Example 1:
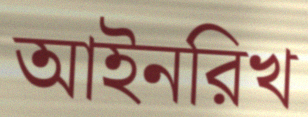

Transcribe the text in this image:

আইনরিখ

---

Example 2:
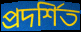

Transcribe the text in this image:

প্রদর্শিত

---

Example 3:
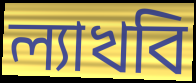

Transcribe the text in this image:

ল্যাখবি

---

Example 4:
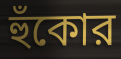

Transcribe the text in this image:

হুঁকোর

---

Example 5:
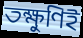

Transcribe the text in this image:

তক্ষুণিই